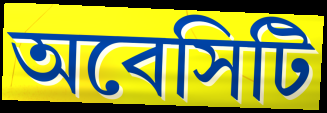
অবেসিটি